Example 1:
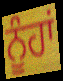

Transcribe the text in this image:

ਨੂੰਹਾਂ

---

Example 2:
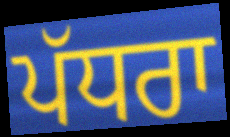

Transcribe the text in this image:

ਪੱਧਰਾ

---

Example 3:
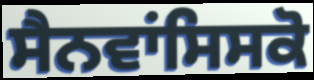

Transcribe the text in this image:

ਸੈਨਵਾਂਸਿਸਕੋ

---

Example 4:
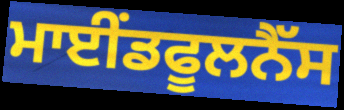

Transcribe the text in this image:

ਮਾਈਂਡਫੂਲਨੈੱਸ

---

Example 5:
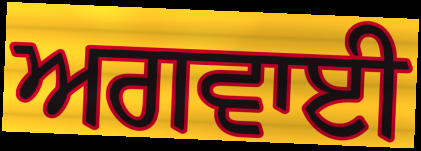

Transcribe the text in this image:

ਅਗਵਾਈ